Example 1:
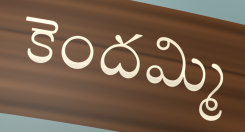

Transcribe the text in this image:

కెందమ్మి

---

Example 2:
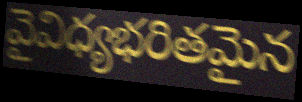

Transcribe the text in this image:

వైవిధ్యభరితమైన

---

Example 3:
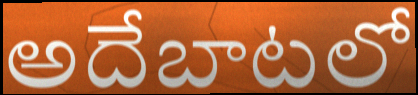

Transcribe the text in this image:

అదేబాటలో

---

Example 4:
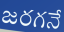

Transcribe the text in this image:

జరగనే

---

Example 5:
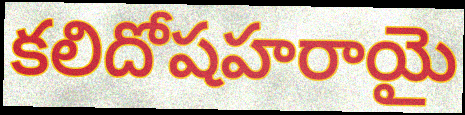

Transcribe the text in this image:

కలిదోషహరాయై